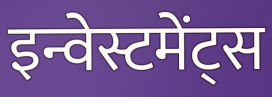
इन्वेस्टमेंट्स